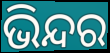
ଭିନ୍ଦର